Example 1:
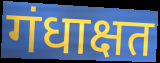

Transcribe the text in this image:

गंधाक्षत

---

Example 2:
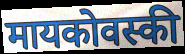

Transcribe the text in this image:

मायकोवस्की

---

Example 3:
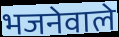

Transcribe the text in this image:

भजनेवाले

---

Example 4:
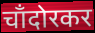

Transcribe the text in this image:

चाँदोरकर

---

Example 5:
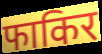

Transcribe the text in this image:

फाकिर